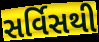
સર્વિસથી